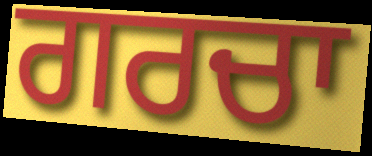
ਗਰਚਾ